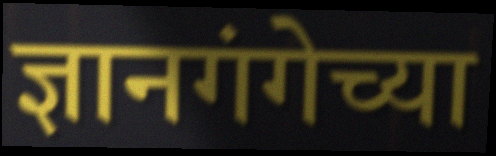
ज्ञानगंगेच्या